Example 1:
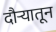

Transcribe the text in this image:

दौर्‍यातून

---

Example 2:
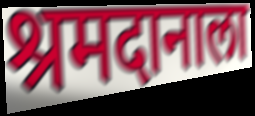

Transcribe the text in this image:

श्रमदानाला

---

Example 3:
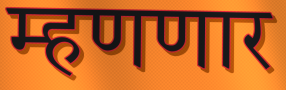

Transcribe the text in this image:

म्हणणार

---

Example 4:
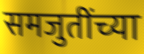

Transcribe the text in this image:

समजुतींच्या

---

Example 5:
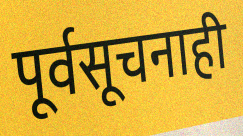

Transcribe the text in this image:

पूर्वसूचनाही